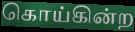
கொய்கின்ற